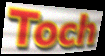
Toch